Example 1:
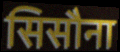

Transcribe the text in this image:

सिसौना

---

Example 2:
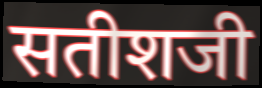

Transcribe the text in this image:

सतीशजी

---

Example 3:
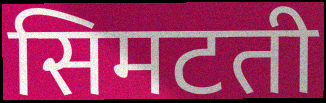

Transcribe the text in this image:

सिमटती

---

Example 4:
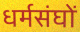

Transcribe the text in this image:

धर्मसंघों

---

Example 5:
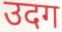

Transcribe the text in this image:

उदग